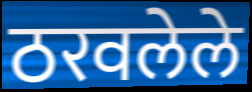
ठरवलेले